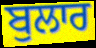
ਬੁਲਾਰ